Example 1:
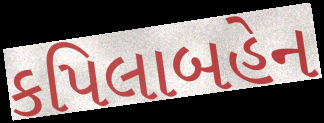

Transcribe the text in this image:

કપિલાબહેન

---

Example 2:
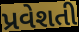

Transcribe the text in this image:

પ્રવેશતી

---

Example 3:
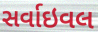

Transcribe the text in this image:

સર્વાઇવલ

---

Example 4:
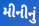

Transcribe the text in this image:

મીનીનું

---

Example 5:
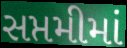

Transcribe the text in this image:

સપ્તમીમાં